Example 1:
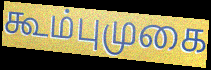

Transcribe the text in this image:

கூம்புமுகை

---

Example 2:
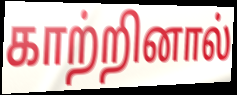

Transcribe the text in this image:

காற்றினால்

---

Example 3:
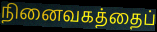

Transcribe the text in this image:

நினைவகத்தைப்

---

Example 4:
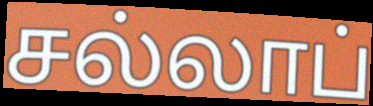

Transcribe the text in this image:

சல்லாப்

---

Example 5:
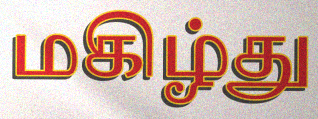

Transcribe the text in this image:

மகிழ்து